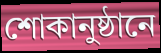
শোকানুষ্ঠানে